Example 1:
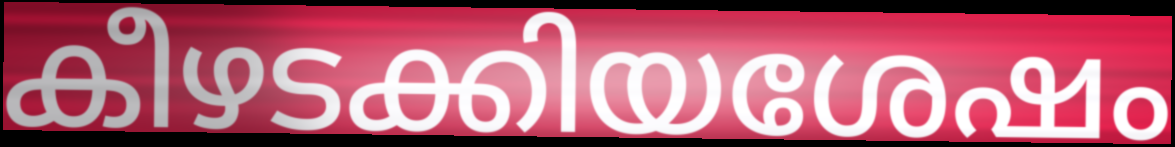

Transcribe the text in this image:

കീഴടക്കിയശേഷം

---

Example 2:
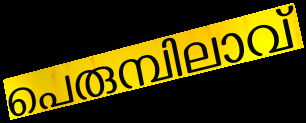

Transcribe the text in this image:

പെരുമ്പിലാവ്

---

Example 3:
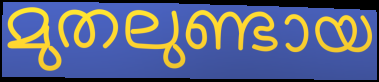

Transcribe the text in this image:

മുതലുണ്ടായ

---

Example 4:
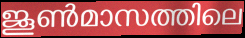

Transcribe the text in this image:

ജൂൺമാസത്തിലെ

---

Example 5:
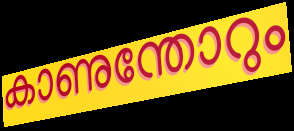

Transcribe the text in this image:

കാണുന്തോറും